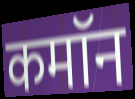
कमॉन